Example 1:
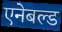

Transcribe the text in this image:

एनेबल्ड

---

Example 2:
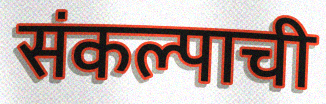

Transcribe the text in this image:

संकल्पाची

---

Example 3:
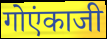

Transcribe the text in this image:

गोएंकाजी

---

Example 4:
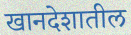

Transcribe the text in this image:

खानदेशातील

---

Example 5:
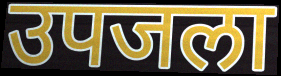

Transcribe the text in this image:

उपजला